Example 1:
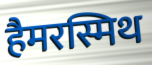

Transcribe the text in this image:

हैमरस्मिथ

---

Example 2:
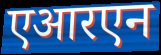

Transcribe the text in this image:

एआरएन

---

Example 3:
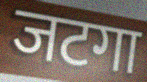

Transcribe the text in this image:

जटगा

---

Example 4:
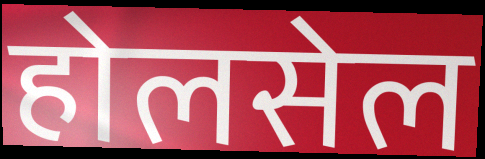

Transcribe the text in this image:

होलसेल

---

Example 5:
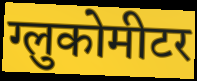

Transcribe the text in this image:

ग्लुकोमीटर